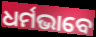
ଧର୍ମଭାବେ